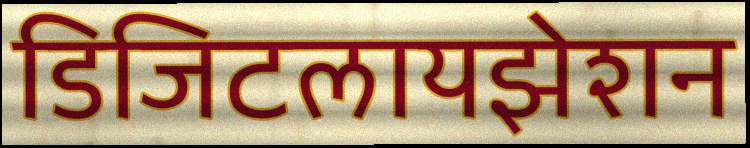
डिजिटलायझेशन